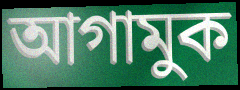
আগামুক